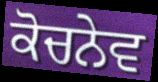
ਕੋਚਨੇਵ